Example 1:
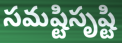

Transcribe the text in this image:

సమష్టిసృష్టి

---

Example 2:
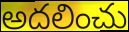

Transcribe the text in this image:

అదలించు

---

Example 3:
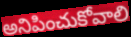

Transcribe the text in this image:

అనిపించుకోవాలి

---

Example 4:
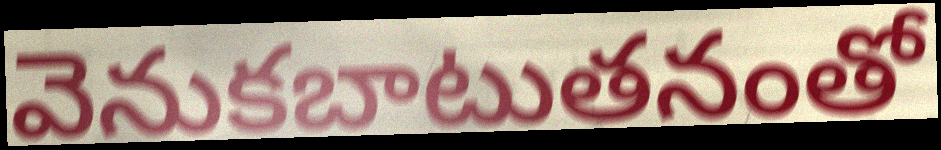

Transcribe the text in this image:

వెనుకబాటుతనంతో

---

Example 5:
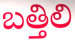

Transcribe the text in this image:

బత్తిలి